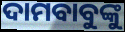
ଦାମବାବୁଙ୍କୁ